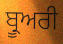
ਬ੍ਰੂਅਰੀ